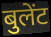
बुलेंट